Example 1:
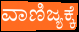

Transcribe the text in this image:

ವಾಣಿಜ್ಯಕ್ಕೆ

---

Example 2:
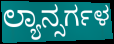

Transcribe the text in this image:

ಲ್ಯಾನ್ಸರ್ಗಳ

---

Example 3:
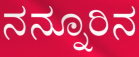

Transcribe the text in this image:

ನನ್ನೂರಿನ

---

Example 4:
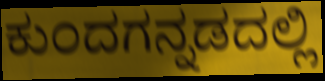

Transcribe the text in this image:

ಕುಂದಗನ್ನಡದಲ್ಲಿ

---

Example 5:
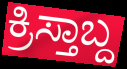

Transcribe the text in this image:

ಕ್ರಿಸ್ತಾಬ್ದ